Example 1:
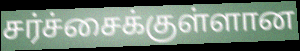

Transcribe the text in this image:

சர்ச்சைக்குள்ளான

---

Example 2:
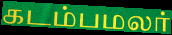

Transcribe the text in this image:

கடம்பமலர்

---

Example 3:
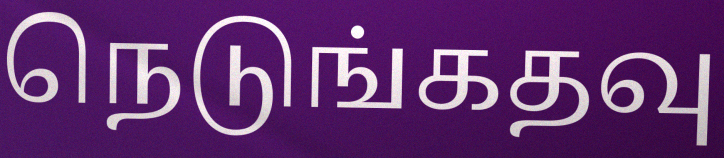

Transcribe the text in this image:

நெடுங்கதவு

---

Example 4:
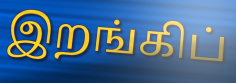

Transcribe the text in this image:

இறங்கிப்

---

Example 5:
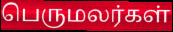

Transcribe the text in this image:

பெருமலர்கள்